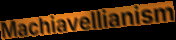
Machiavellianism